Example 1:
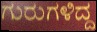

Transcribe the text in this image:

ಗುರುಗಳಿದ್ದ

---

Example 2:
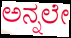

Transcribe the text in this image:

ಅನ್ನಲೇ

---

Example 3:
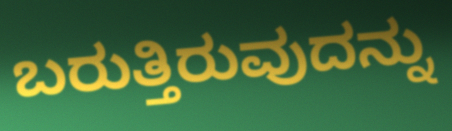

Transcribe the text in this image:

ಬರುತ್ತಿರುವುದನ್ನು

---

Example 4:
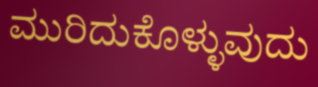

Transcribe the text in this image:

ಮುರಿದುಕೊಳ್ಳುವುದು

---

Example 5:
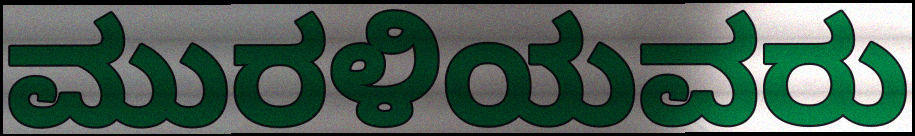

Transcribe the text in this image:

ಮುರಳಿಯವರು